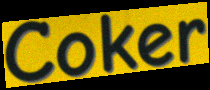
Coker